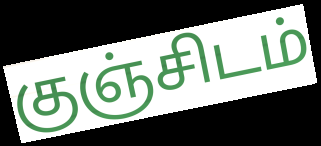
குஞ்சிடம்